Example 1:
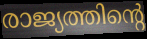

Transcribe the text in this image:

രാജ്യത്തിന്റെ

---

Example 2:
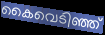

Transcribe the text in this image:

കൈവെടിഞ്ഞ്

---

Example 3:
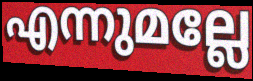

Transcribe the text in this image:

എന്നുമല്ലേ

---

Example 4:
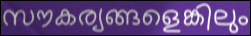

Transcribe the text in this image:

സൗകര്യങ്ങളെങ്കിലും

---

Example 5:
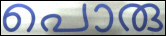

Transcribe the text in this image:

പൊരു